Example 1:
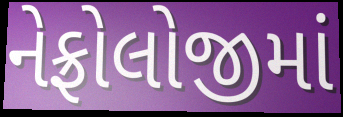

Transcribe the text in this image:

નેફ્રોલોજીમાં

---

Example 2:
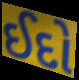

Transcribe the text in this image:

ઈદો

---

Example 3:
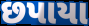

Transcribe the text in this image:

છપાયા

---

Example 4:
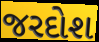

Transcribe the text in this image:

જરદોશ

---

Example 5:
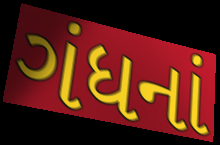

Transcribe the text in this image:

ગંધનાં